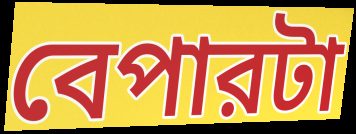
বেপারটা